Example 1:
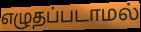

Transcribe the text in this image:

எழுதப்படாமல்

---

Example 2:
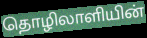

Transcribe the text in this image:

தொழிலாளியின்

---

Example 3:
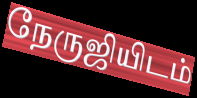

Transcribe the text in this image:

நேருஜியிடம்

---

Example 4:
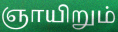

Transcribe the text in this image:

ஞாயிறும்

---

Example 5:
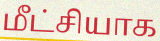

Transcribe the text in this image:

மீட்சியாக